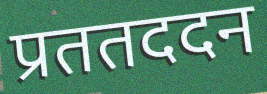
प्रततददन